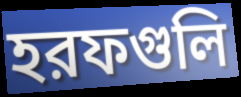
হরফগুলি